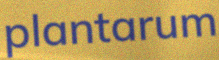
plantarum